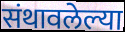
संथावलेल्या